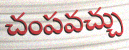
చంపవచ్చు